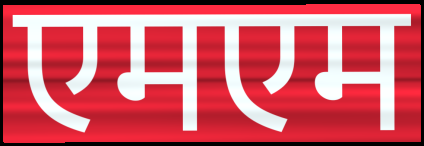
एमएम